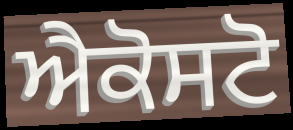
ਐਕੋਸਟੋ